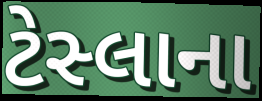
ટેસ્લાના